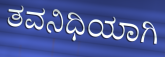
ತವನಿಧಿಯಾಗಿ